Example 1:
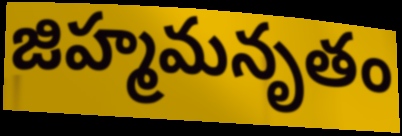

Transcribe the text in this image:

జిహ్మమనృతం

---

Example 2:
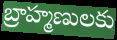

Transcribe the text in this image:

బ్రాహ్మణులకు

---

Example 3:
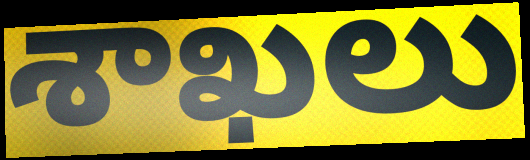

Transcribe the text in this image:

శాఖలు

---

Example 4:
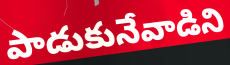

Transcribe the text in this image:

పాడుకునేవాడిని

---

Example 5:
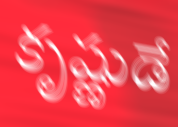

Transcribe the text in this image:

కృష్ణుడే